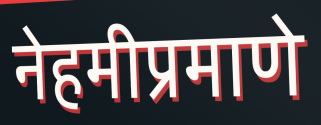
नेहमीप्रमाणे